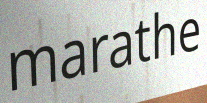
marathe